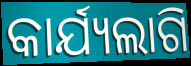
କାର୍ଯ୍ୟଲାଗି